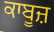
ਕਾਬੂਜ਼